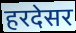
हरदेसर